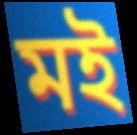
মই